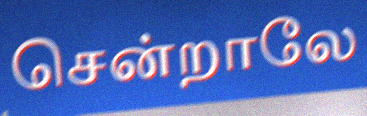
சென்றாலே